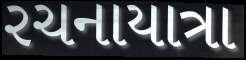
રચનાયાત્રા